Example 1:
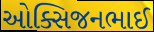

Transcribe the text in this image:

ઓક્સિજનભાઈ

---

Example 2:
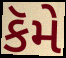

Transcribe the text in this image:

કૅમે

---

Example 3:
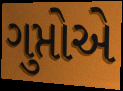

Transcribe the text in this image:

ગુપ્તોએ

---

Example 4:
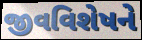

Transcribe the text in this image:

જીવવિશેષને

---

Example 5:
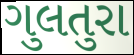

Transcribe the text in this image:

ગુલતુરા